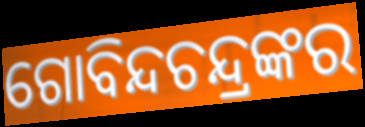
ଗୋବିନ୍ଦଚନ୍ଦ୍ରଙ୍କର